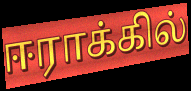
ஈராக்கில்